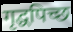
गृद्धपिच्छ